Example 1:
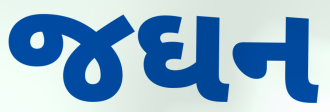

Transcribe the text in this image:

જઘન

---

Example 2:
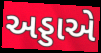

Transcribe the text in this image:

અડ્ડાએ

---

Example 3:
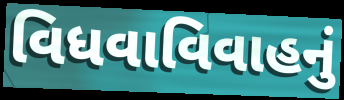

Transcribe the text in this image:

વિધવાવિવાહનું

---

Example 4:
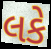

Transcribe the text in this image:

લકે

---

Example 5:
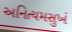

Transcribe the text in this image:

અનિત્યમસુખં